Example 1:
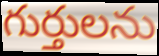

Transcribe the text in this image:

గుర్తులను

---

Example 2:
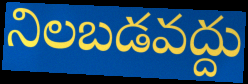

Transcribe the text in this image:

నిలబడవద్దు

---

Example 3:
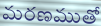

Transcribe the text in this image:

మరణముతో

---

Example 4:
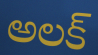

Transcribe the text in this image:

అలక్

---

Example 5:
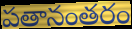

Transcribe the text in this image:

పతానంతరం